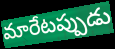
మారేటప్పుడు